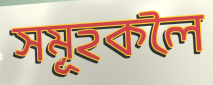
সমূহকলৈ